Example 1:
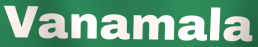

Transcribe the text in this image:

Vanamala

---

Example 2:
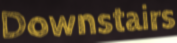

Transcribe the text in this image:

Downstairs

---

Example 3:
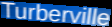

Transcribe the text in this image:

Turberville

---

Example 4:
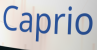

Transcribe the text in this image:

Caprio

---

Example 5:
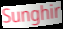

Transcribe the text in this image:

Sunghir